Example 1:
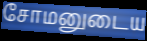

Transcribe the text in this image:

சோமனுடைய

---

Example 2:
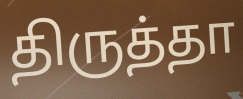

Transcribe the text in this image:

திருத்தா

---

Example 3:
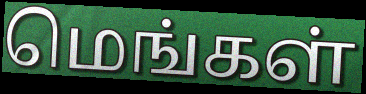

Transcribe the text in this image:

மெங்கள்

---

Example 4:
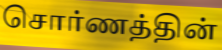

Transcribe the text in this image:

சொர்ணத்தின்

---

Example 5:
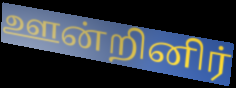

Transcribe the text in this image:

ஊன்றினிர்